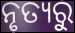
ନୃତ୍ୟରୁ